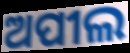
ଅପୀଲ